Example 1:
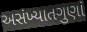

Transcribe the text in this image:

અસંખ્યાતગુણાં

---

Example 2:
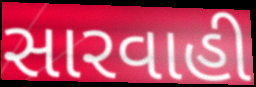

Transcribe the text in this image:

સારવાહી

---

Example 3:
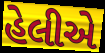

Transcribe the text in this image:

હેલીએ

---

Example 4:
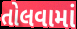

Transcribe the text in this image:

તોલવામાં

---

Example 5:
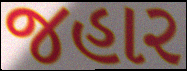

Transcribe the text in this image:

જહાર